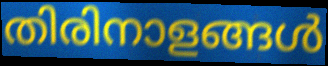
തിരിനാളങ്ങൾ